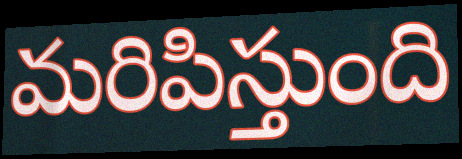
మరిపిస్తుంది